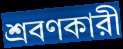
শ্রবণকারী